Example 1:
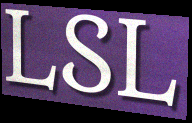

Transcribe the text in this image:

LSL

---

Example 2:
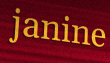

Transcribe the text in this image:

janine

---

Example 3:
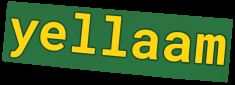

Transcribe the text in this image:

yellaam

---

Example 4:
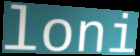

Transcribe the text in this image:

loni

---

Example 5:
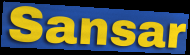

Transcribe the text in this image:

Sansar